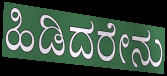
ಹಿಡಿದರೇನು